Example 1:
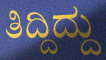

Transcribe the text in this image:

ತಿದ್ದಿದ್ದು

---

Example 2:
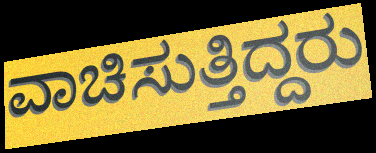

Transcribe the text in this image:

ವಾಚಿಸುತ್ತಿದ್ದರು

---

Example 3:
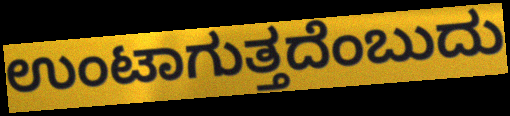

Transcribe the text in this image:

ಉಂಟಾಗುತ್ತದೆಂಬುದು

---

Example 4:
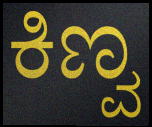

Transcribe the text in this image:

ಕಿಣ್ವ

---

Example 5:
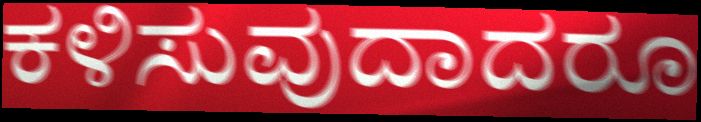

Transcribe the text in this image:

ಕಳಿಸುವುದಾದರೂ